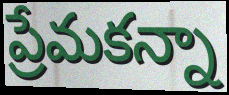
ప్రేమకన్నా